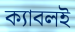
ক্যাবলই